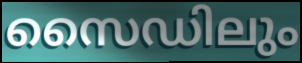
സൈഡിലും